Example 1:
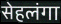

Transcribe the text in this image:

सेहलंगा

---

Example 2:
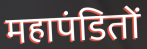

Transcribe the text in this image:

महापंडितों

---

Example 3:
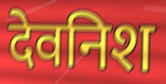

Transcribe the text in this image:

देवनिश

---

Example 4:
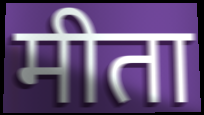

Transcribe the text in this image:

मीता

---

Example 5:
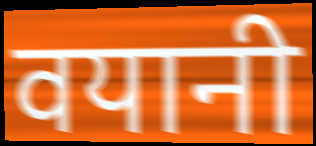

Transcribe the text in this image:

वयानी